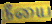
நீயை